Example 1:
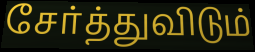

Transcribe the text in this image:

சேர்த்துவிடும்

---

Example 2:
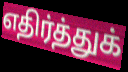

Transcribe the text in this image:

எதிர்த்துக்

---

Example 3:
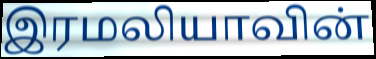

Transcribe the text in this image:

இரமலியாவின்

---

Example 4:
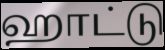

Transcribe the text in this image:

ஹாட்டு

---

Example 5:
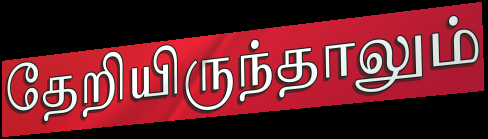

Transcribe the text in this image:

தேறியிருந்தாலும்